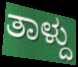
ತಾಳ್ದು